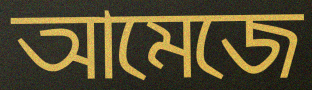
আমেজে